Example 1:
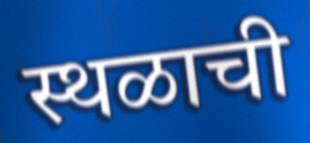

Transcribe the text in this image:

स्थळाची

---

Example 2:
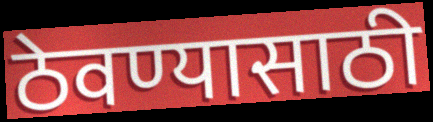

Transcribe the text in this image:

ठेवण्यासाठी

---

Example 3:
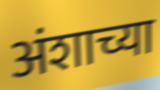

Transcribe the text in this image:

अंशाच्या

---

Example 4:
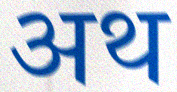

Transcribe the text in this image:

अथ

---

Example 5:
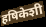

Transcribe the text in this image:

हषिकेशी